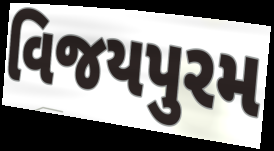
વિજયપુરમ